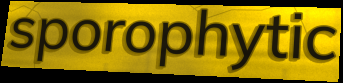
sporophytic